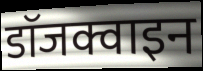
डॉजक्वाइन